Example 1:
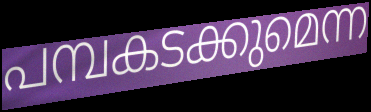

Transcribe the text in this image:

പമ്പകടക്കുമെന്ന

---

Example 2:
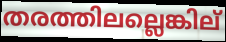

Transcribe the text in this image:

തരത്തിലല്ലെങ്കില്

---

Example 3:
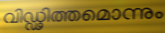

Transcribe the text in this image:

വിഡ്ഢിത്തമൊന്നും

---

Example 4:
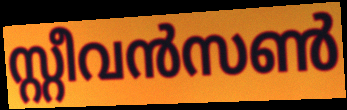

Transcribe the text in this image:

സ്റ്റീവൻസൺ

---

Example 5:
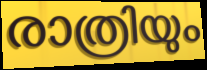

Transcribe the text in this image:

രാത്രിയും